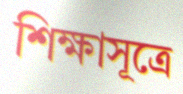
শিক্ষাসূত্রে